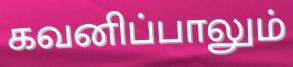
கவனிப்பாலும்